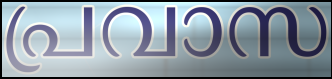
പ്രവാസ